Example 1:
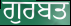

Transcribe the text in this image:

ਗੁਰਬਤ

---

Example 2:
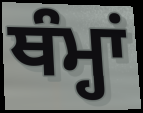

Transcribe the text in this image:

ਥੰਮ੍ਹਾਂ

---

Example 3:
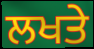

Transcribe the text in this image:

ਲਖਤੇ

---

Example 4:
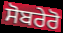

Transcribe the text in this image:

ਸੋਬਰੇਰੋ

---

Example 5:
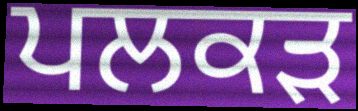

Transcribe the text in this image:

ਪਲਕੜ